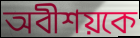
অবীশয়কে